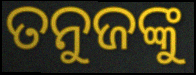
ତନୁଜଙ୍କୁ